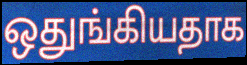
ஒதுங்கியதாக